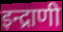
इन्द्राणी